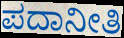
ಪದಾನೀತಿ